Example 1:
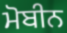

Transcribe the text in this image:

ਮੋਬੀਨ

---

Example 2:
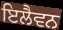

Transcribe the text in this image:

ਇਲੈਵਨ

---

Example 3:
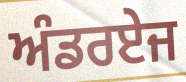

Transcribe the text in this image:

ਅੰਡਰਏਜ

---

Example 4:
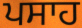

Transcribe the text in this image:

ਪਸਾਹ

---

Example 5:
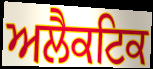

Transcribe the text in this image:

ਅਲੈਕਟਿਕ